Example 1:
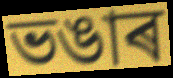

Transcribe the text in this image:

ভঙাৰ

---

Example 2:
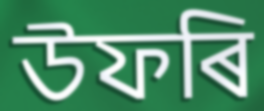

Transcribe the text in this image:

উফৰি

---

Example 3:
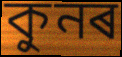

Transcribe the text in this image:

কুনৰ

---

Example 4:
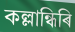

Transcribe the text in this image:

কল্লান্ধিৰি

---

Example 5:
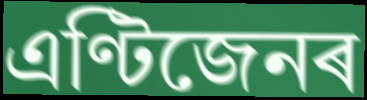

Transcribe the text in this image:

এণ্টিজেনৰ